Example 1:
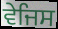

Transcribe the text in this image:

ਵੇਜਿਸ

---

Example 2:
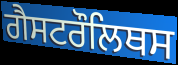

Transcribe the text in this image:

ਗੈਸਟਰੌਲਿਥਸ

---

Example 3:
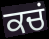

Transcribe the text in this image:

ਕਚਂ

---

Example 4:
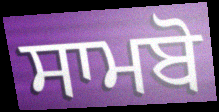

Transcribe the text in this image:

ਸਾਮਬੋ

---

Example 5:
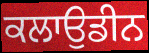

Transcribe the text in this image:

ਕਲਾਉਡੀਨ